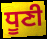
ਧੂਣੀ